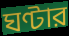
ঘণ্টার